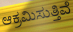
ಆಕ್ರಮಿಸುತ್ತಿವೆ